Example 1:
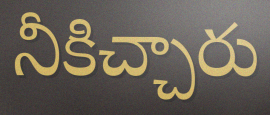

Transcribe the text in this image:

నీకిచ్చారు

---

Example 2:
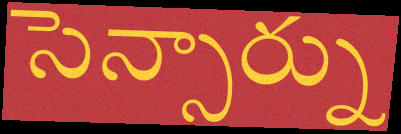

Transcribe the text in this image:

సెన్సార్ను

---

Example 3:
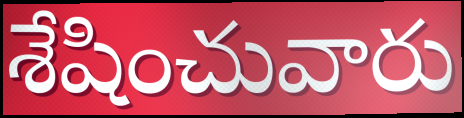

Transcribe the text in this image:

శేషించువారు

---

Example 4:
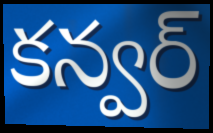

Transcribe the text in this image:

కన్వర్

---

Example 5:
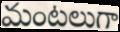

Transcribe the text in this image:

మంటలుగా